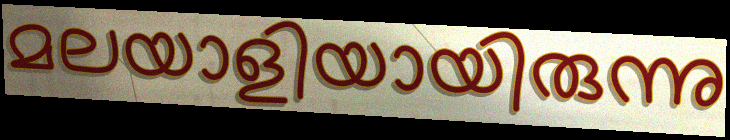
മലയാളിയായിരുന്നു